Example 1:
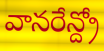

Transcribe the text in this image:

వానరేన్ద్రో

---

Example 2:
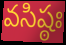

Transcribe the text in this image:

వసిష్ఠః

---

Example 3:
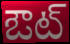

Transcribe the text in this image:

ఔట్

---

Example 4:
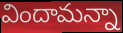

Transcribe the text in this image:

విందామన్నా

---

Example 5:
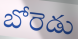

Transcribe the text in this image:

బోరెడు